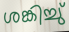
ശങ്കിച്ചു്